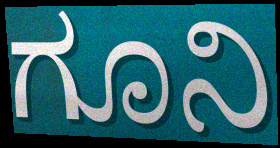
ಗೂನಿ